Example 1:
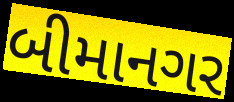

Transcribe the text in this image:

બીમાનગર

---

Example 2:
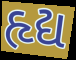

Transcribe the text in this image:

હૃદ્ય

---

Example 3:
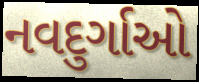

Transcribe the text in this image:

નવદુર્ગાઓ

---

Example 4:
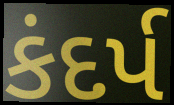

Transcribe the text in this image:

કંદર્પ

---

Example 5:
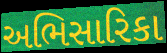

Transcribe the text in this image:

અભિસારિકા